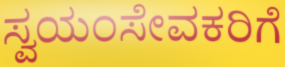
ಸ್ವಯಂಸೇವಕರಿಗೆ